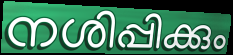
നശിപ്പിക്കും